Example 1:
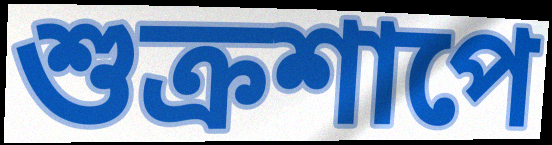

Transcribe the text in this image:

শুক্রশাপে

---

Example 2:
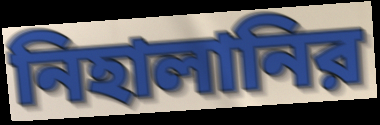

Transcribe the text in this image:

নিহালানির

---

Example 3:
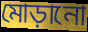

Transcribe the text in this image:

মোড়ানো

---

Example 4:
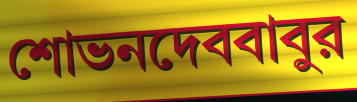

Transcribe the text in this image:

শোভনদেববাবুর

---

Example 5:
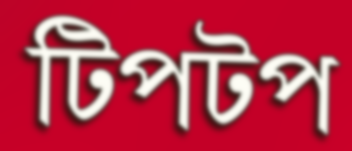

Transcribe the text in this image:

টিপটপ